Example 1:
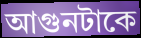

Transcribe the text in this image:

আগুনটাকে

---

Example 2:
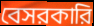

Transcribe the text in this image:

বেসরকারি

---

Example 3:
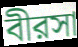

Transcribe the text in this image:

বীরসা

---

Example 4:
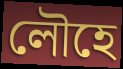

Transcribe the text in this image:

লৌহে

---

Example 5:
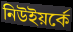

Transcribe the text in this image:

নিউইয়র্কে